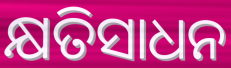
କ୍ଷତିସାଧନ